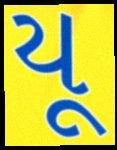
યૂ